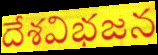
దేశవిభజన